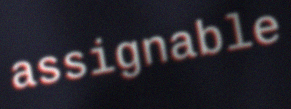
assignable